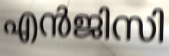
എൻജിസി